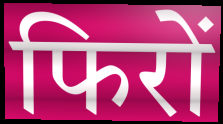
फिरों